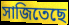
সাজিতেছে